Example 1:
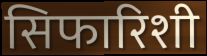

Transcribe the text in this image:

सिफारिशी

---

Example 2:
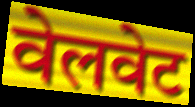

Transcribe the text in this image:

वेलवेट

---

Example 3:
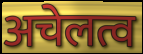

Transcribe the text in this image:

अचेलत्व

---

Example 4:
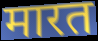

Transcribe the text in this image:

मारत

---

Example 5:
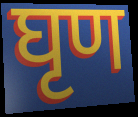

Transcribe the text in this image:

घृण